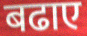
बढाए